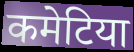
कमेटिया